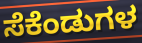
ಸೆಕೆಂಡುಗಳ